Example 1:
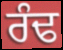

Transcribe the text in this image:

ਰੰਢ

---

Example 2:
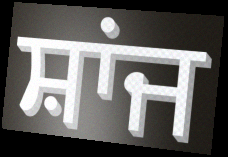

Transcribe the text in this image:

ਸ਼ਾਂਜ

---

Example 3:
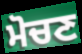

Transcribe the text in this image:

ਮੋਚਣ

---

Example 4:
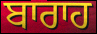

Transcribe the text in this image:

ਬਾਰਾਹ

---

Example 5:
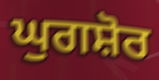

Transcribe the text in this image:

ਘੁਗਸ਼ੋਰ